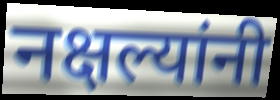
नक्षल्यांनी